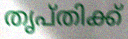
തൃപ്തിക്ക്